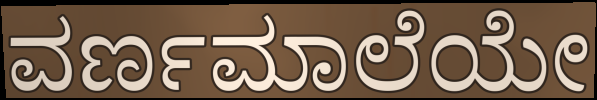
ವರ್ಣಮಾಲೆಯೇ